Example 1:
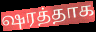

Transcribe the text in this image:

ஷரத்தாக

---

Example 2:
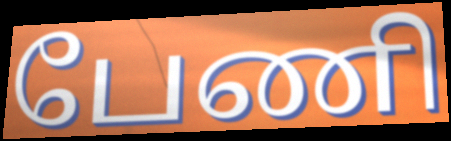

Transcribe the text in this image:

பேணி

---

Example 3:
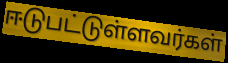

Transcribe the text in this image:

ஈடுபட்டுள்ளவர்கள்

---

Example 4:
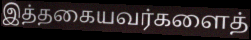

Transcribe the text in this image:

இத்தகையவர்களைத்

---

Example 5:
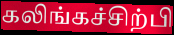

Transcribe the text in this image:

கலிங்கச்சிற்பி